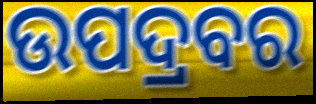
ଉପଦ୍ରବର